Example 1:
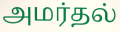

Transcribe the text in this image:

அமர்தல்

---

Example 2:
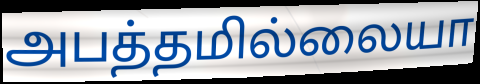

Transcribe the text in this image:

அபத்தமில்லையா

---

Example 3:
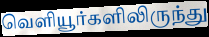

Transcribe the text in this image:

வெளியூர்களிலிருந்து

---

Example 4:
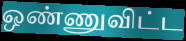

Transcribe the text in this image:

ஒண்ணுவிட்ட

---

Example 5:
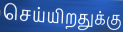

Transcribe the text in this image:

செய்யிறதுக்கு